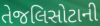
તેજલિસોટાની